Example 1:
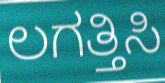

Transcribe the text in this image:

ಲಗತ್ತಿಸಿ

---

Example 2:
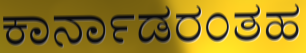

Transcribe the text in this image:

ಕಾರ್ನಾಡರಂತಹ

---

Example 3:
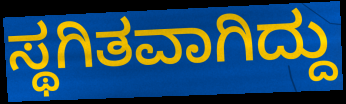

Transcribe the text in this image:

ಸ್ಥಗಿತವಾಗಿದ್ದು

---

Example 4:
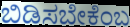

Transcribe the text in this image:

ಬಿಡಿಸಬೇಕೆಂಬ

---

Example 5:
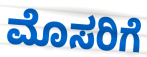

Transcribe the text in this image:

ಮೊಸರಿಗೆ